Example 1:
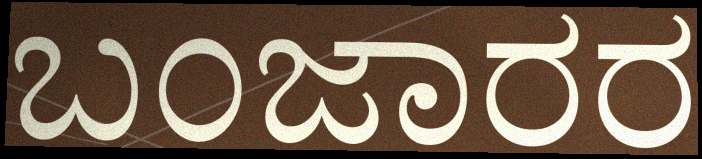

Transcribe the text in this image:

ಬಂಜಾರರ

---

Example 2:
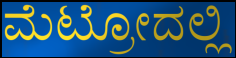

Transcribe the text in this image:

ಮೆಟ್ರೋದಲ್ಲಿ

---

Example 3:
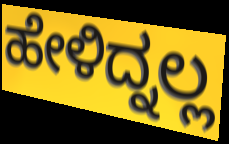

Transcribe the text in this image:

ಹೇಳಿದ್ನಲ್ಲ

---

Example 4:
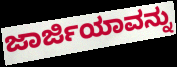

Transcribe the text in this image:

ಜಾರ್ಜಿಯಾವನ್ನು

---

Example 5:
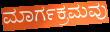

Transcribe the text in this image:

ಮಾರ್ಗಕ್ರಮವು